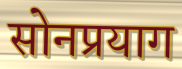
सोनप्रयाग